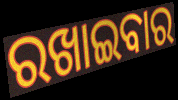
ରଖାଇବାର